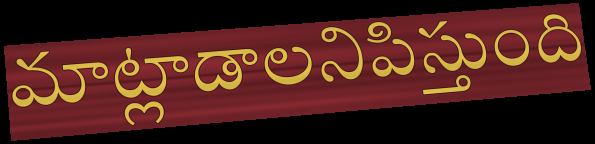
మాట్లాడాలనిపిస్తుంది